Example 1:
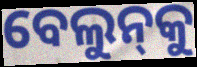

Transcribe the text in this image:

ବେଲୁନ୍‌କୁ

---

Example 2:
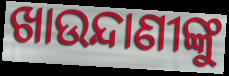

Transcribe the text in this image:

ଖାଉନ୍ଦାଣୀଙ୍କୁ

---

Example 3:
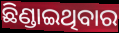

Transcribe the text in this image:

ଛିଣ୍ଡାଇଥିବାର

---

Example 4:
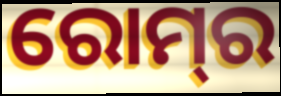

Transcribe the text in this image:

ରୋମ୍‍ର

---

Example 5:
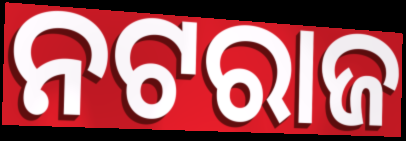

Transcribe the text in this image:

ନଟରାଜ